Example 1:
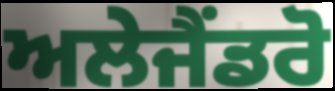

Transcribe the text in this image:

ਅਲੇਜੈਂਡਰੋ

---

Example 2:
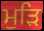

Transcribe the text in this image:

ਮੁੜਿ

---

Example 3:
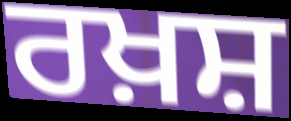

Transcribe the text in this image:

ਰਖ਼ਸ਼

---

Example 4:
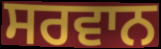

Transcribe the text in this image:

ਸਰਵਾਨ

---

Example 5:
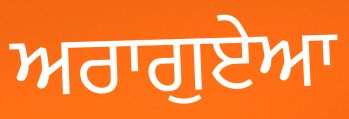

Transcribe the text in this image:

ਅਰਾਗੁਏਆ